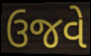
ઉજવે